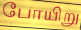
போயிறு